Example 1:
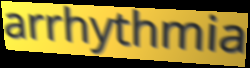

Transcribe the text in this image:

arrhythmia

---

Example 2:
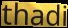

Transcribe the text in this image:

thadi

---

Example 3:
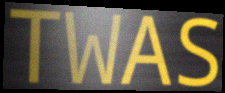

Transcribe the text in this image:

TWAS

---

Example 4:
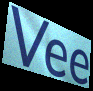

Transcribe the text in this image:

Vee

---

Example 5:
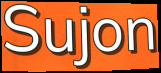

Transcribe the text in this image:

Sujon